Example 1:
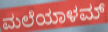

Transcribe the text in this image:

ಮಲೆಯಾಳಮ್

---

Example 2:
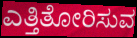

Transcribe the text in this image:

ಎತ್ತಿತೋರಿಸುವ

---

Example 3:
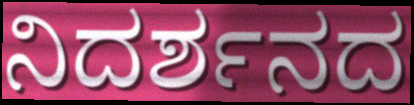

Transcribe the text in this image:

ನಿದರ್ಶನದ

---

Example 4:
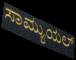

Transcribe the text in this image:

ಸಾಮ್ಯುಯಲ್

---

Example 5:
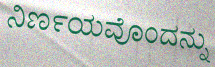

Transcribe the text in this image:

ನಿರ್ಣಯವೊಂದನ್ನು